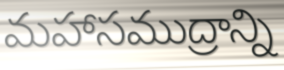
మహాసముద్రాన్ని